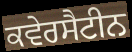
ਕਵੇਰਸੈਟੀਨ